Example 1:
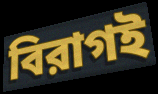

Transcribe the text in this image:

বিরাগই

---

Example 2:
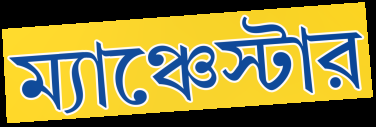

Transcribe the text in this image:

ম্যাঞ্চেস্টার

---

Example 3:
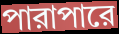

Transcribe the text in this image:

পারাপারে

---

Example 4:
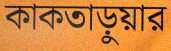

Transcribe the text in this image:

কাকতাড়ুয়ার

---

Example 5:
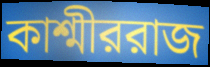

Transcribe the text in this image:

কাশ্মীররাজ